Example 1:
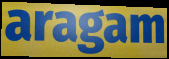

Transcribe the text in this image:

aragam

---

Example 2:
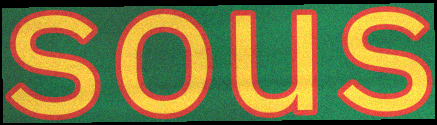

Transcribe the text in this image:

sous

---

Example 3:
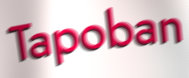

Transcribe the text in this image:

Tapoban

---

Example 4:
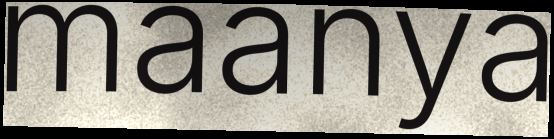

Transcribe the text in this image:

maanya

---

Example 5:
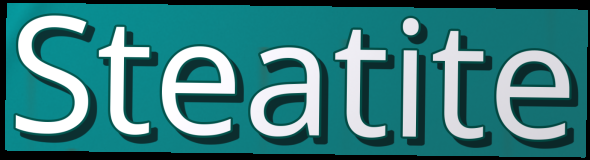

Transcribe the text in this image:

Steatite